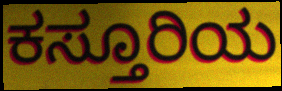
ಕಸ್ತೂರಿಯ